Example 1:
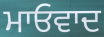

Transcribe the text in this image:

ਮਾਓਵਾਦ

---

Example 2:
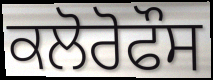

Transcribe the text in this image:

ਕਲੋਰੋਫੌਸ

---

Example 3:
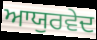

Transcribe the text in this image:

ਆਯੁਰਵੇਦ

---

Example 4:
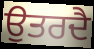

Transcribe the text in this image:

ਉਤਰਦੈ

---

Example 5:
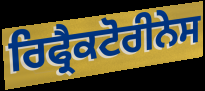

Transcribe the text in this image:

ਰਿਫ੍ਰੈਕਟੋਰੀਨੇਸ